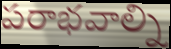
పరాభవాల్ని